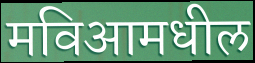
मविआमधील